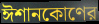
ঈশানকোণের